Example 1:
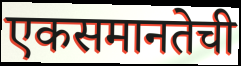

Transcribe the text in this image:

एकसमानतेची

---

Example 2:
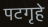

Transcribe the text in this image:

पटगृहे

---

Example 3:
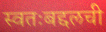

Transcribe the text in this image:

स्वतःबद्दलची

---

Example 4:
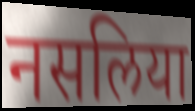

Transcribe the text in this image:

नसलिया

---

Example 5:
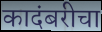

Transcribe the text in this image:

कादंबरीचा